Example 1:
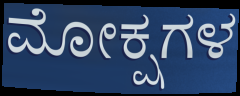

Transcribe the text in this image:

ಮೋಕ್ಷಗಳ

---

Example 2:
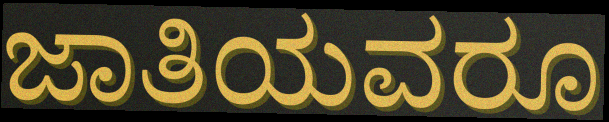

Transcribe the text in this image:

ಜಾತಿಯವರೂ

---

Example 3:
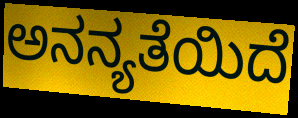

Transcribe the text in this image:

ಅನನ್ಯತೆಯಿದೆ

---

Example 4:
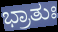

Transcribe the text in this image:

ಭ್ರಾತುಃ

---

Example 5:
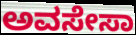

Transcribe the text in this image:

ಅವಸೇಸಾ